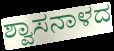
ಶ್ವಾಸನಾಳದ